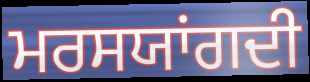
ਮਰਸਯਾਂਗਦੀ